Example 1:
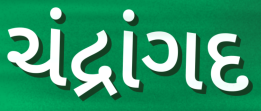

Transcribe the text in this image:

ચંદ્રાંગદ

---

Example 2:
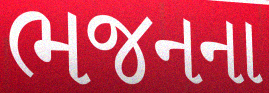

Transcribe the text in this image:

ભજનના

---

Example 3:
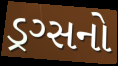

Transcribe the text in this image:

ડ્રગ્સનો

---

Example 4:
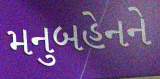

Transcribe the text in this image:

મનુબહેનને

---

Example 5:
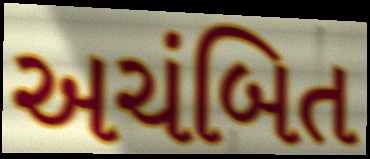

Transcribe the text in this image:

અચંબિત